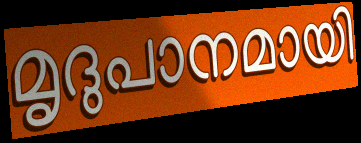
മൃദുപാനമായി